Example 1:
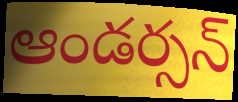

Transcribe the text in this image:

ఆండర్సన్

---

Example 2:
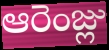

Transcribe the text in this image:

ఆరెంజ్లు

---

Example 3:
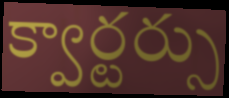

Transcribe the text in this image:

క్వార్టర్సు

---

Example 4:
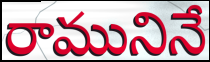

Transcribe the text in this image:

రామునినే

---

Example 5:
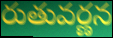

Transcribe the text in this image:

రుతువర్ణన